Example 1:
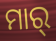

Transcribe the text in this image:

ମାର୍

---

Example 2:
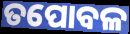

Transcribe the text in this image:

ତପୋବଳ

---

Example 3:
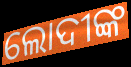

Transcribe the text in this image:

ଲୋଦୀଙ୍କ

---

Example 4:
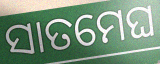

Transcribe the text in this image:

ସାତମେଘ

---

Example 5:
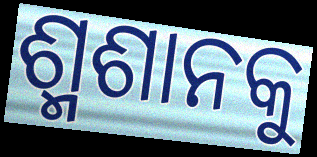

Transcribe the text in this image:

ଶ୍ମଶାନକୁ